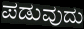
ಪಡುವುದು